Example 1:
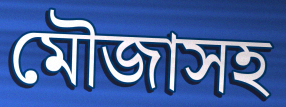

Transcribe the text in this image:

মৌজাসহ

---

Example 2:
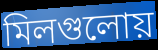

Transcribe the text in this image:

মিলগুলোয়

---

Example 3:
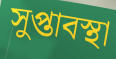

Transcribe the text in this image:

সুপ্তাবস্থা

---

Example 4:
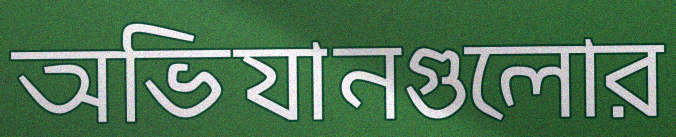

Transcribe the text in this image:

অভিযানগুলোর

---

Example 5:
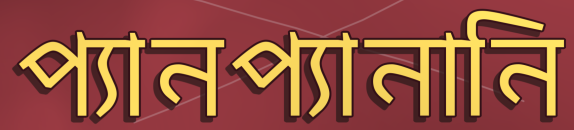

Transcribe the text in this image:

প্যানপ্যানানি